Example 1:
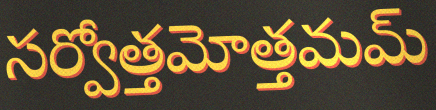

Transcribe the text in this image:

సర్వోత్తమోత్తమమ్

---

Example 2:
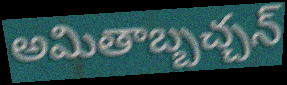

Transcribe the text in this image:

అమితాబ్బచ్చన్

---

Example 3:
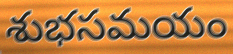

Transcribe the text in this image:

శుభసమయం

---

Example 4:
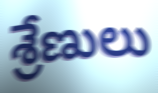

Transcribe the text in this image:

శ్రేణులు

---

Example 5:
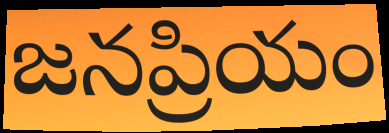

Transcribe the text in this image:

జనప్రియం